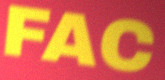
FAC